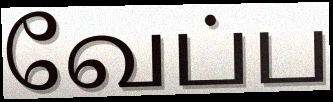
வேப்ப